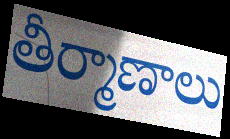
తీర్మాణాలు